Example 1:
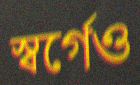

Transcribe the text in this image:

স্বর্গেও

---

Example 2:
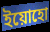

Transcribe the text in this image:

ইয়োহো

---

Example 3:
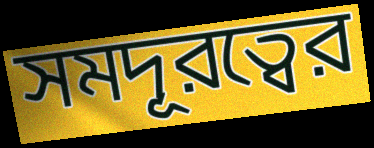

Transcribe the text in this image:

সমদূরত্বের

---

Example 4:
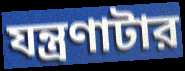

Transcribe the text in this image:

যন্ত্রণাটার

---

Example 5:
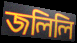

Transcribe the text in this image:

জলিলি